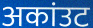
अकांउट